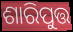
ଶାରିପୁତ୍ତ